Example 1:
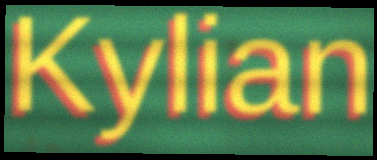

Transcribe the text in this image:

Kylian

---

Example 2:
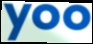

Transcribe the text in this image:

yoo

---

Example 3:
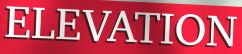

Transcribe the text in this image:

ELEVATION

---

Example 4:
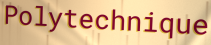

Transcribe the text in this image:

Polytechnique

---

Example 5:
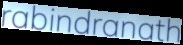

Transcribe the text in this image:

rabindranath